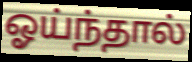
ஓய்ந்தால்